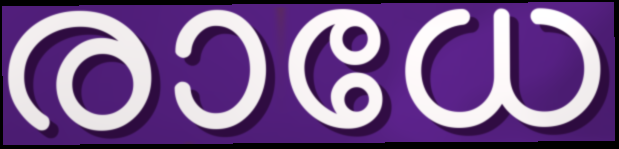
രാധേ